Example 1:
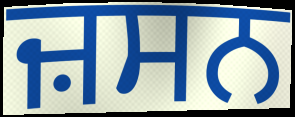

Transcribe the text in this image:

ਜ਼ਸਨ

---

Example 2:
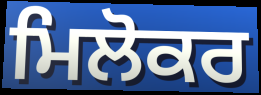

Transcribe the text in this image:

ਮਿਲੋਕਰ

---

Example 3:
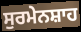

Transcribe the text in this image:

ਸੁਰਮੇਨਸ਼ਾਹ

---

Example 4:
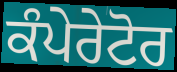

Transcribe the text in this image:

ਕੰਪੇਰੇਟੋਰ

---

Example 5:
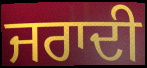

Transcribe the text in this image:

ਜਰਾਦੀ